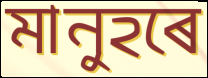
মানুহৰে